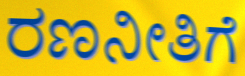
ರಣನೀತಿಗೆ